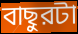
বাছুরটা